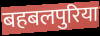
बहबलपुरिया